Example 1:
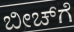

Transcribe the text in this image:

ಬೀಚ್‌ಗೆ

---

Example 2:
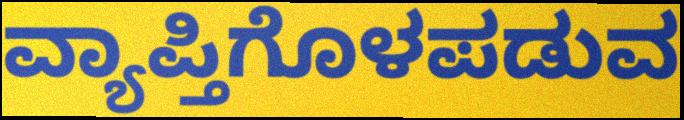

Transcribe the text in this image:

ವ್ಯಾಪ್ತಿಗೊಳಪಡುವ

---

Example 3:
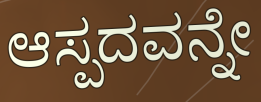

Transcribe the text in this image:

ಆಸ್ಪದವನ್ನೇ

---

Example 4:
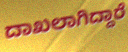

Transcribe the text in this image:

ದಾಖಲಾಗಿದ್ದಾರೆ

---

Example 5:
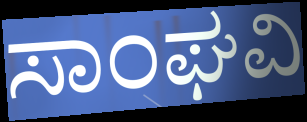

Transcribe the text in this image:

ಸಾಂಘವಿ